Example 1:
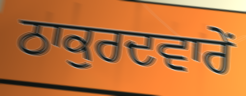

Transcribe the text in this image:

ਠਾਕੁਰਦਵਾਰੇਂ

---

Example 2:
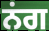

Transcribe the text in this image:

ਨਂਗ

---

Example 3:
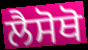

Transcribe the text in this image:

ਲੈਸੋਥੋ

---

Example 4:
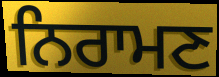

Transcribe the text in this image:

ਨਿਰਾਮਣ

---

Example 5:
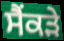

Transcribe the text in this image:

ਸੈਂਕੜੇ